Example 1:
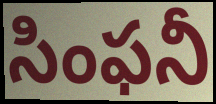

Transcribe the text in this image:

సింఫనీ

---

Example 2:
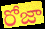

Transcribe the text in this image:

రోజా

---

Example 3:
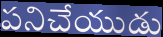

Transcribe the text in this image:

పనిచేయుడు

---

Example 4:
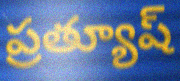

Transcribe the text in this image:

ప్రత్యూష్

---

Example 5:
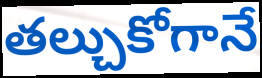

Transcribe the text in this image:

తల్చుకోగానే